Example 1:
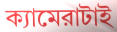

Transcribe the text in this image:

ক্যামেরাটাই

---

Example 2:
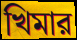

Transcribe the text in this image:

খিমার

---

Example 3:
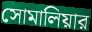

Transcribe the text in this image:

সোমালিয়ার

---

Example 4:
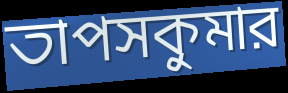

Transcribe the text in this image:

তাপসকুমার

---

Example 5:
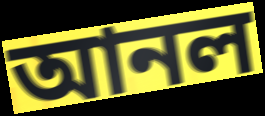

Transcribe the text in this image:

আনল